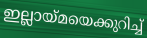
ഇല്ലായ്മയെക്കുറിച്ച്